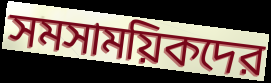
সমসাময়িকদের